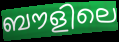
ബൗളിലെ